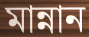
মান্নান